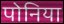
पोनिया